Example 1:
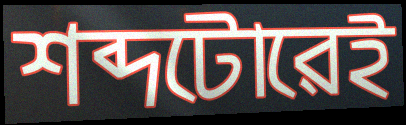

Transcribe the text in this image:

শব্দটোৱেই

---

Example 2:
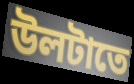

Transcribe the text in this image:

উলটাতে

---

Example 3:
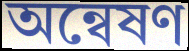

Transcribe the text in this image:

অন্বেষণ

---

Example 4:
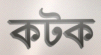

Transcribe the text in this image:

কটক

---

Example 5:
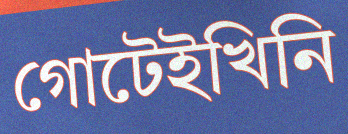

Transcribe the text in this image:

গোটেইখিনি